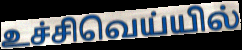
உச்சிவெய்யில்